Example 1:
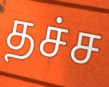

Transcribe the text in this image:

தச்ச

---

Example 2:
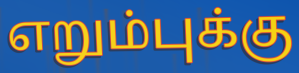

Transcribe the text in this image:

எறும்புக்கு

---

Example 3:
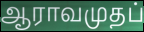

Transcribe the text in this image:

ஆராவமுதப்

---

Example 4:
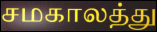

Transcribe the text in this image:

சமகாலத்து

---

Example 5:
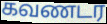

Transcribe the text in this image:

கவணடர